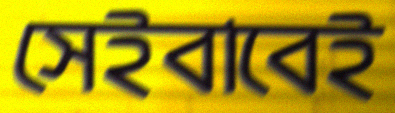
সেইবাবেই